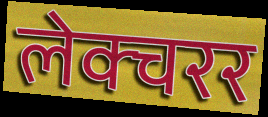
लेक्‍चरर